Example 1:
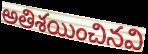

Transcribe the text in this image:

అతిశయించినవి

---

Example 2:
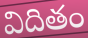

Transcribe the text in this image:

విదితం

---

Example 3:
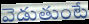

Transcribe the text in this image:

వెడుతుంటే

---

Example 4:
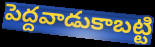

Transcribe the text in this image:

పెద్దవాడుకాబట్టి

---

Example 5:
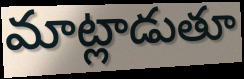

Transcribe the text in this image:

మాట్లాడుతూ